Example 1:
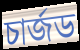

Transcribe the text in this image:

চার্জড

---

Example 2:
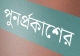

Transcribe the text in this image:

পুনর্প্রকাশের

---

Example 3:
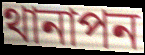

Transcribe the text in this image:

থানাপন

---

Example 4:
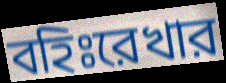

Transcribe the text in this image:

বহিঃরেখার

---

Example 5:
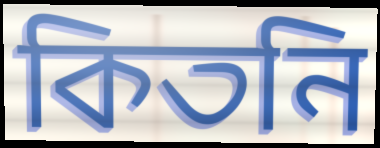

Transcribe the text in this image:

কিতনি